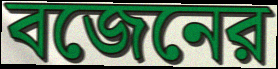
বজেনের